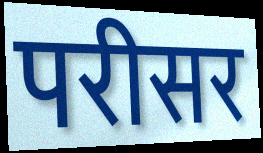
परीसर